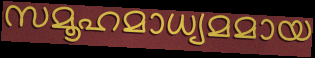
സമൂഹമാധ്യമമായ